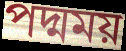
পদ্মময়